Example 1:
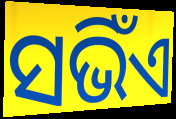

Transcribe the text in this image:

ସଭିଁଏ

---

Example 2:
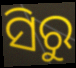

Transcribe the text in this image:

ସିରୁ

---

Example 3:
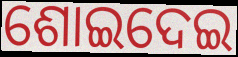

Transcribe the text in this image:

ଶୋଇଦେଇ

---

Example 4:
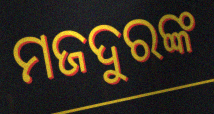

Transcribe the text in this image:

ମଜଦୁରଙ୍କ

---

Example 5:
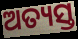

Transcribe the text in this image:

ଅତ୍ୟସ୍ତ